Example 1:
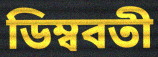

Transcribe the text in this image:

ডিম্ববতী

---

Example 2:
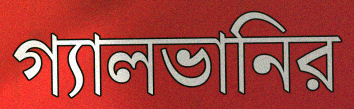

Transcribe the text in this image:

গ্যালভানির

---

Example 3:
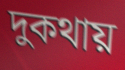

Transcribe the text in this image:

দুকথায়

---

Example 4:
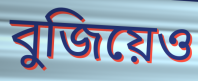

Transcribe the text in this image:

বুজিয়েও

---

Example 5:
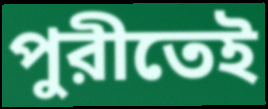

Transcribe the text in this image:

পুরীতেই